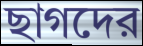
ছাগদের